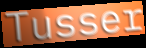
Tusser